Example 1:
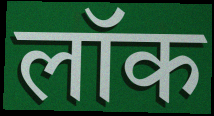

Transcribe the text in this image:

लॉक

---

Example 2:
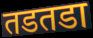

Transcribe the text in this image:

तडतडा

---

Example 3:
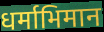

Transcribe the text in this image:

धर्माभिमान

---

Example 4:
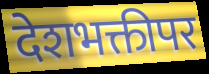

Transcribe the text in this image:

देशभक्तीपर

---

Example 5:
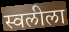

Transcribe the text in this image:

स्वलीला